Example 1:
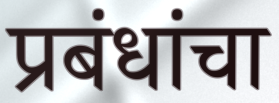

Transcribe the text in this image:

प्रबंधांचा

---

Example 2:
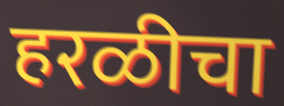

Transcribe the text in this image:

हरळीचा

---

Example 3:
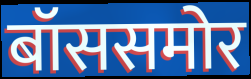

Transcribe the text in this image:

बॉससमोर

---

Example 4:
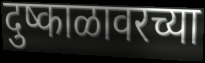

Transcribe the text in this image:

दुष्काळावरच्या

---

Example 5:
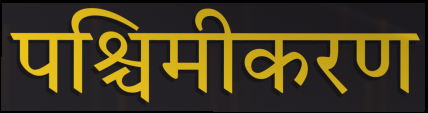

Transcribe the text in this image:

पश्चिमीकरण